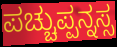
ಪಚ್ಚುಪ್ಪನ್ನಸ್ಸ